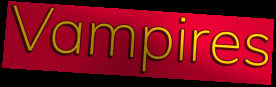
Vampires